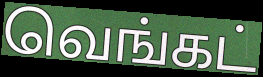
வெங்கட்